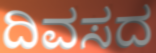
ದಿವಸದ